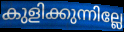
കുളിക്കുന്നില്ലേ